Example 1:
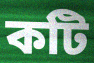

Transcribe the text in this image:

কটি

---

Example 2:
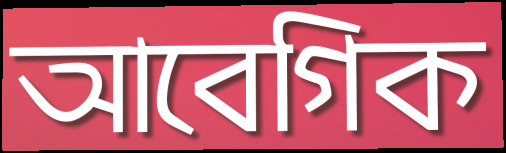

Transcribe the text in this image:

আবেগিক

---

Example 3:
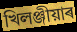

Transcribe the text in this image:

খিলঞ্জীয়াৰ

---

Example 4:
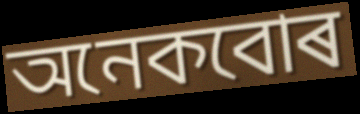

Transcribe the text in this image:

অনেকবোৰ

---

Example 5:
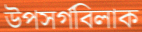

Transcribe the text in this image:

উপসৰ্গবিলাক